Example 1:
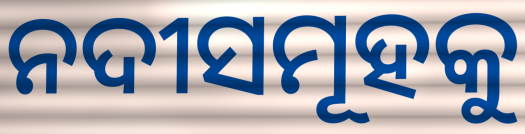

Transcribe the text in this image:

ନଦୀସମୂହକୁ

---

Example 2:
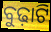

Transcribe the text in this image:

ବୁଢ଼ାଟି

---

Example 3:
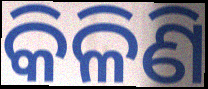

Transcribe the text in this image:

କିଳିଣି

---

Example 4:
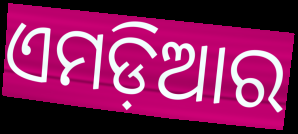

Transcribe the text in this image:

ଏମଡ଼ିଆର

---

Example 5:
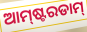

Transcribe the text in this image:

ଆମ୍‍ଷ୍ଟରଡାମ୍